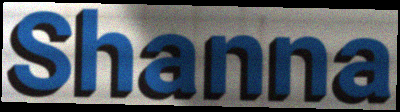
Shanna